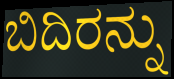
ಬಿದಿರನ್ನು